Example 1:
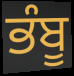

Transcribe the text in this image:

ਭੰਬੂ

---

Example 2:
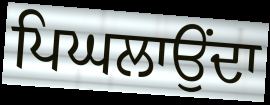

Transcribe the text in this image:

ਪਿਘਲਾਉਂਦਾ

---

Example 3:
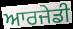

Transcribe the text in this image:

ਆਰਜੇਡੀ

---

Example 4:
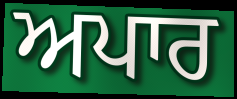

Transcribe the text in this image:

ਅਪਾਰ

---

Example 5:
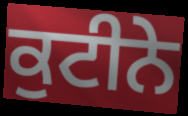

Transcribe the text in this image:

ਕੁਟੀਨੇ